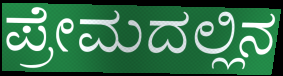
ಪ್ರೇಮದಲ್ಲಿನ